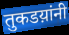
तुकडय़ांनी